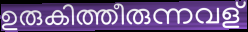
ഉരുകിത്തീരുന്നവള്